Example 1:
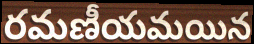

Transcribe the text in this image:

రమణీయమయిన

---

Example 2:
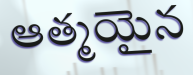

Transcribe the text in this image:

ఆత్మయైన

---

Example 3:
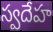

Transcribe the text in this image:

స్వదేహ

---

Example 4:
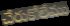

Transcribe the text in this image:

చేరుకోలేము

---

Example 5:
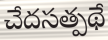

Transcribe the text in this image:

చేదసత్పథే